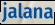
jalana